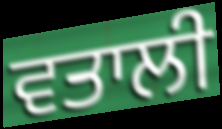
ਵਤਾਲੀ